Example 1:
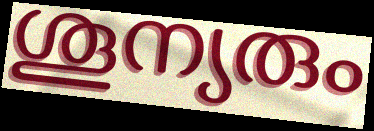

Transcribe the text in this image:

ശൂന്യരും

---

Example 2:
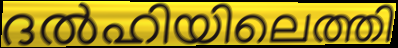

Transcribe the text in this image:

ദൽഹിയിലെത്തി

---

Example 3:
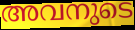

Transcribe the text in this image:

അവനുടെ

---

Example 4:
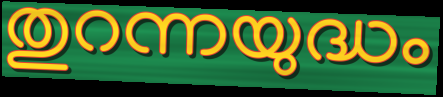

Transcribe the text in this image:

തുറന്നയുദ്ധം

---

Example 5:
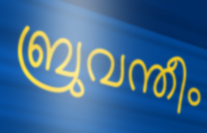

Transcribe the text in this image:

ബ്രുവന്തീം